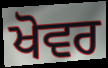
ਖੋਵਰ